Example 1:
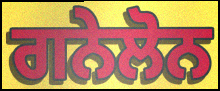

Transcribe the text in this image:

ਗਨੇਲੋਨ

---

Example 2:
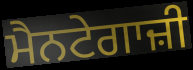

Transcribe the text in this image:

ਮੈਨਟੇਗਾਜ਼ੀ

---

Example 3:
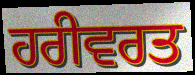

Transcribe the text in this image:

ਹਰੀਵਰਤ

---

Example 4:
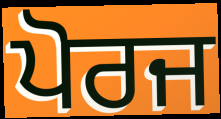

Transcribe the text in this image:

ਪੋਰਜ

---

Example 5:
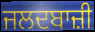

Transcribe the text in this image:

ਜਲਦਬਾਜ਼ੀ